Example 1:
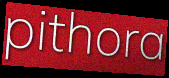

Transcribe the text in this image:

pithora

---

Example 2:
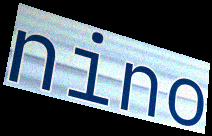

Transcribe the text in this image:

nino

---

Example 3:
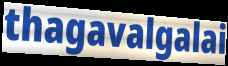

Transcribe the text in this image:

thagavalgalai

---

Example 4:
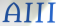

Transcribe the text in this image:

AIII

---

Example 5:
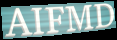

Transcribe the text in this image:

AIFMD